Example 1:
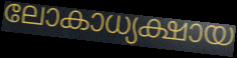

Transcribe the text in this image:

ലോകാധ്യക്ഷായ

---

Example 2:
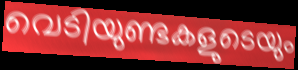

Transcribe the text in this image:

വെടിയുണ്ടകളുടെയും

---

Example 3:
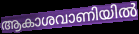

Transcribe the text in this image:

ആകാശവാണിയിൽ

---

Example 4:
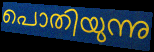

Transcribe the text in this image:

പൊതിയുന്നു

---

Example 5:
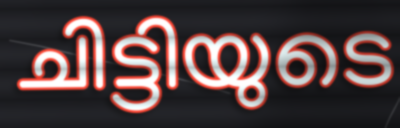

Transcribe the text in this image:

ചിട്ടിയുടെ